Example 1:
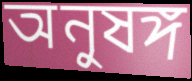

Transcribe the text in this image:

অনুষঙ্গ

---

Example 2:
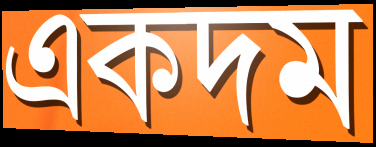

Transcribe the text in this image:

একদম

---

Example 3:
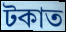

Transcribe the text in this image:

টকাত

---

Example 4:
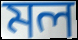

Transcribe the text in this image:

মল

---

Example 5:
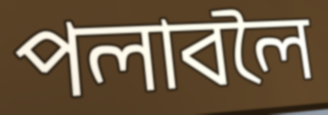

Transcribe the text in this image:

পলাবলৈ